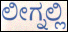
ಲೀಗ್ನಲ್ಲಿ